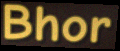
Bhor